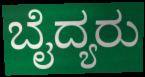
ಬೈದ್ಯರು